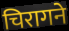
चिरागने